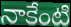
నాకేంటి